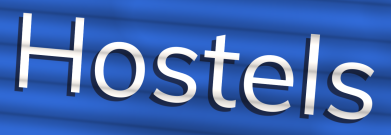
Hostels